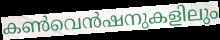
കൺവെൻഷനുകളിലും